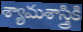
శ్యామశాస్త్రికి